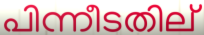
പിന്നീടതില്